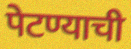
पेटण्याची